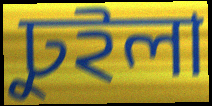
ঢুইলা